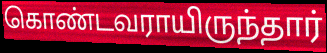
கொண்டவராயிருந்தார்